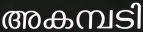
അകമ്പടി